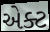
એક્ટ